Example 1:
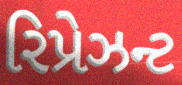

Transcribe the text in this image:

રિપ્રેઝન્ટ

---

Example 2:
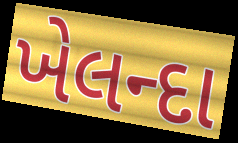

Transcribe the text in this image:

ખેલન્દા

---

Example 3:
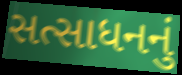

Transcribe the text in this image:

સત્સાધનનું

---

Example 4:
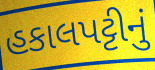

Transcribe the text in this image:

હકાલપટ્ટીનું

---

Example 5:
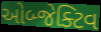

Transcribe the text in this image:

ઓબ્જેક્ટિવ